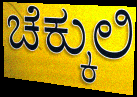
ಚೆಕ್ಕುಲಿ